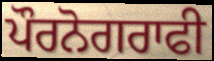
ਪੌਰਨੋਗਰਾਫੀ